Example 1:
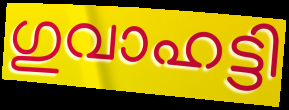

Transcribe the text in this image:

ഗുവാഹട്ടി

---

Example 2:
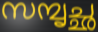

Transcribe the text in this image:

സമ്പൃച്ഛ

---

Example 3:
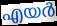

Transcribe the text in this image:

എയർ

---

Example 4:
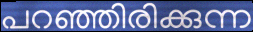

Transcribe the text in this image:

പറഞ്ഞിരിക്കുന്ന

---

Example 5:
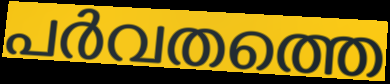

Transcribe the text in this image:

പർവതത്തെ